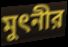
মুৎনীর